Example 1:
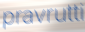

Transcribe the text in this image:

pravrutti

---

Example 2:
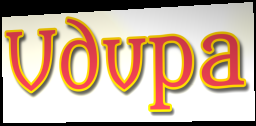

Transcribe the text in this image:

Udupa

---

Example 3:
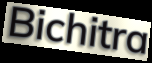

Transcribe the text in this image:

Bichitra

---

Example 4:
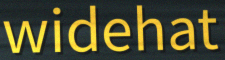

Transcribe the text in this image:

widehat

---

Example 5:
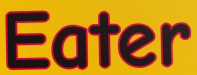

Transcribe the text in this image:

Eater